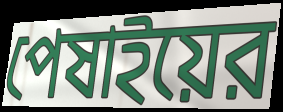
পেষাইয়ের